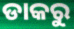
ଡାକରୁ